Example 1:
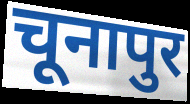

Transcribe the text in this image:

चूनापुर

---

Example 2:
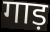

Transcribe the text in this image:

गाड़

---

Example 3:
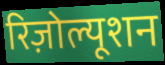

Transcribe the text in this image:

रिज़ोल्यूशन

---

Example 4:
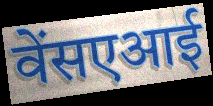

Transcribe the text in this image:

वेंसएआई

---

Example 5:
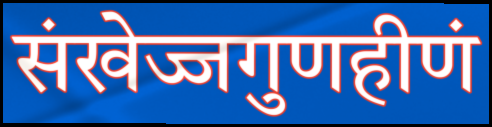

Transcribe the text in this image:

संखेज्जगुणहीणं